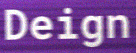
Deign